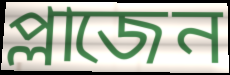
প্লাজেন